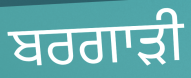
ਬਰਗਾੜੀ